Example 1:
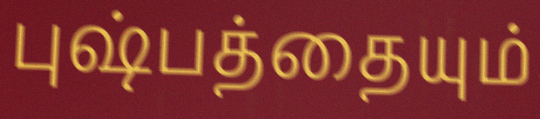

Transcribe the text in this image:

புஷ்பத்தையும்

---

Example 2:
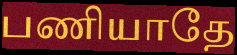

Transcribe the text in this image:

பணியாதே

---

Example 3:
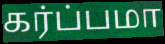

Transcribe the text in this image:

கர்ப்பமா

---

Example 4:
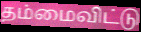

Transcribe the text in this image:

தம்மைவிட்டு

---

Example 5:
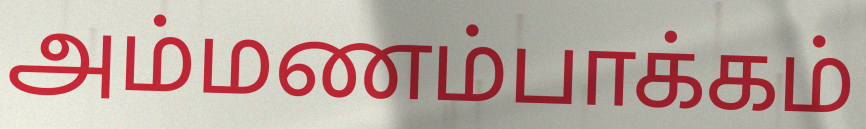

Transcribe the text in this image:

அம்மணம்பாக்கம்